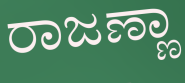
ರಾಜಣ್ಣಾ